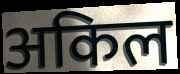
अकिल